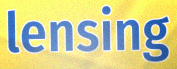
lensing